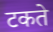
टकते